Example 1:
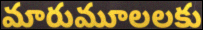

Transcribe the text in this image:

మారుమూలలకు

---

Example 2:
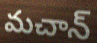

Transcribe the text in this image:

మచాన్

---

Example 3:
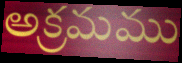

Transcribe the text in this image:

అక్రమము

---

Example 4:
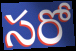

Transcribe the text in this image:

సరో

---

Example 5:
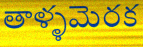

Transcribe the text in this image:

తాళ్ళమెరక